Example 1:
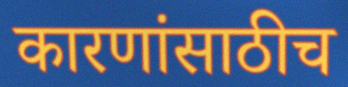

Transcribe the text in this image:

कारणांसाठीच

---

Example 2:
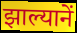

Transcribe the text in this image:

झाल्यानें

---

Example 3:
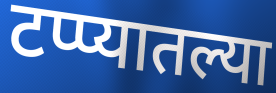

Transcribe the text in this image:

टप्प्यातल्या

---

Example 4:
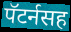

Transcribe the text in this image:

पॅटर्नसह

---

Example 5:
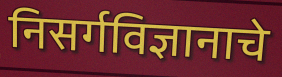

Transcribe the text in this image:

निसर्गविज्ञानाचे